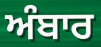
ਅੰਬਾਰ